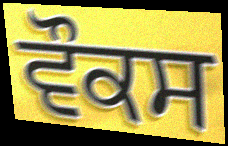
ਵੌਕਸ